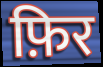
फ़िर